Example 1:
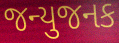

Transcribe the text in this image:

જન્યુજનક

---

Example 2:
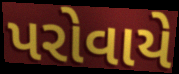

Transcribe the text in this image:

પરોવાયે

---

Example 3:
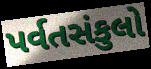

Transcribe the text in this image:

પર્વતસંકુલો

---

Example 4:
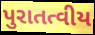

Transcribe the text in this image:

પુરાતત્વીય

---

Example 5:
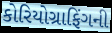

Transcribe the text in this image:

કોરિયોગ્રાફિંગની